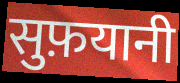
सुफ़यानी